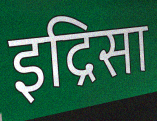
इद्रिसा